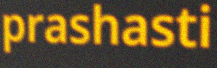
prashasti